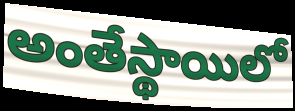
అంతేస్థాయిలో